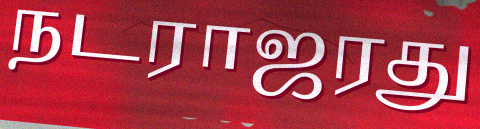
நடராஜரது